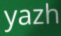
yazh